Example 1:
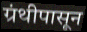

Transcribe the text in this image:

ग्रंथीपासून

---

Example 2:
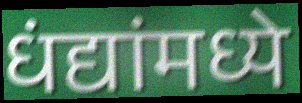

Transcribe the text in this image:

धंद्यांमध्ये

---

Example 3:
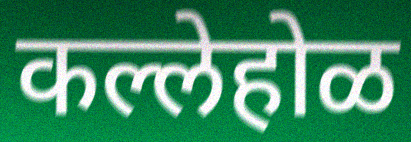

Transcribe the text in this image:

कल्लेहोळ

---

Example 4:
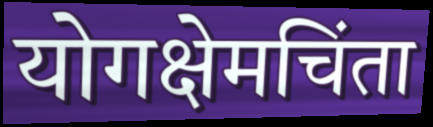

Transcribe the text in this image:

योगक्षेमचिंता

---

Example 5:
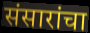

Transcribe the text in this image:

संसारांचा